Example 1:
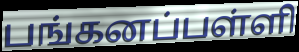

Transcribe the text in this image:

பங்கனப்பள்ளி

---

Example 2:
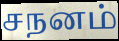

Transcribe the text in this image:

சநனம்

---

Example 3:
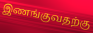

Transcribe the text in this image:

இணங்குவதற்கு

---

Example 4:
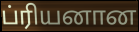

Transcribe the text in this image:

ப்ரியனான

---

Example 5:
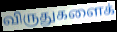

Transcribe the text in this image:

விருதுகளைக்